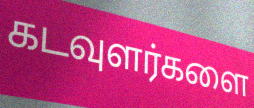
கடவுளர்களை